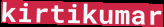
kirtikumar